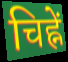
चिह्नें